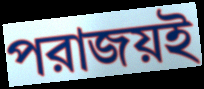
পরাজয়ই